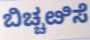
ಬಿಚ್ಚೞಿಸೆ